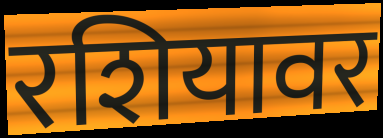
रशियावर